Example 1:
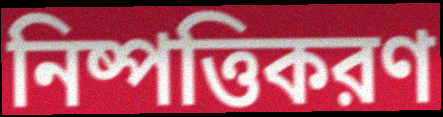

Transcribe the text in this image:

নিষ্পত্তিকরণ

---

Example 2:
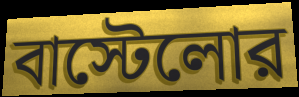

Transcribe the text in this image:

বাস্টেলোর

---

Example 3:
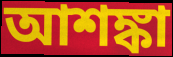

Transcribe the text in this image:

আশঙ্কা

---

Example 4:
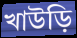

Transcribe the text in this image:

খাউড়ি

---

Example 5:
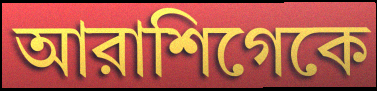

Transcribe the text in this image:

আরাশিগেকে